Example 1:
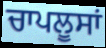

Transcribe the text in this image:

ਚਾਪਲੂਸਾਂ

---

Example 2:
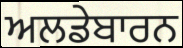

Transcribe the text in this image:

ਅਲਡੇਬਾਰਨ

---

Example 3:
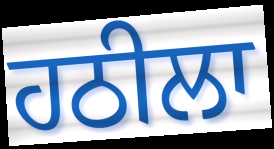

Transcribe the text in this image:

ਹਠੀਲਾ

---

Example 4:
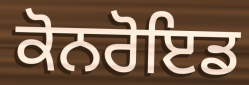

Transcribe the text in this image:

ਕੋਨਰੋਇਡ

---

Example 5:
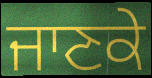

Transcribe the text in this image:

ਜਾਣਕੇ